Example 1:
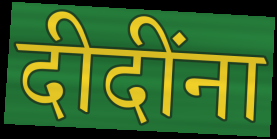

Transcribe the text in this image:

दीदींना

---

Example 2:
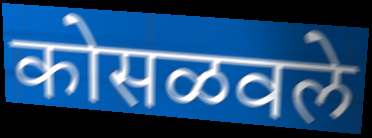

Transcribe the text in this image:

कोसळवले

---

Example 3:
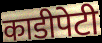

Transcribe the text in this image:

काडीपेटी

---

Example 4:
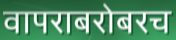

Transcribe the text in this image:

वापराबरोबरच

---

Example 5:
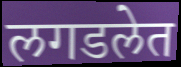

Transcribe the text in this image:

लगडलेत